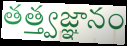
తత్త్వజ్ఞానం